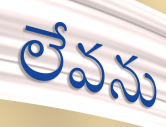
లేవను